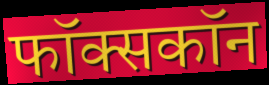
फॉक्सकॉन